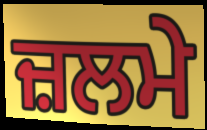
ਜ਼ਲਮੇ